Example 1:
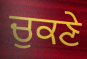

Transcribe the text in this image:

ਚੁਕਣੇ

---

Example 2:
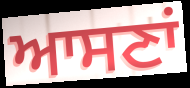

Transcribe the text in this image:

ਆਸਣਾਂ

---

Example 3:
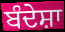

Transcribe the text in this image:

ਬੰਦੇਸ਼ਾ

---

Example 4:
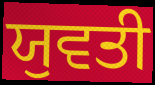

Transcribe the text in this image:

ਯੁਵਤੀ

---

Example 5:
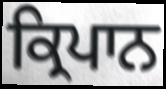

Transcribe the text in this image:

ਕ੍ਰਿਪਾਨ